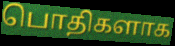
பொதிகளாக